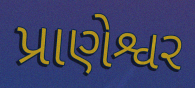
પ્રાણેશ્વર